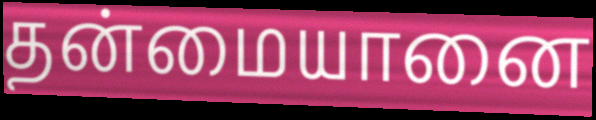
தன்மையானை